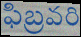
ఫిబ్రవరి